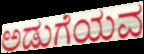
ಅಡುಗೆಯವ